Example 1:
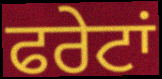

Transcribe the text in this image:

ਫਰੇਟਾਂ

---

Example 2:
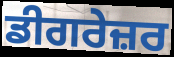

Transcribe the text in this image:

ਡੀਗਰੇਜ਼ਰ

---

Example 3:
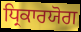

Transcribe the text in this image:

ਧ੍ਰਿਕਾਰਯੋਗ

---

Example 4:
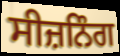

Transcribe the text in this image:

ਸੀਜ਼ਨਿੰਗ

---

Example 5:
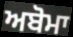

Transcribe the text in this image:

ਅਬੋਮਾ